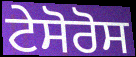
ਟੇਸੋਰੋਸ